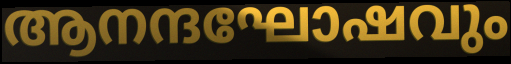
ആനന്ദഘോഷവും